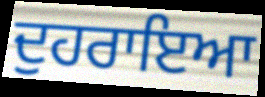
ਦੁਹਰਾਇਆ